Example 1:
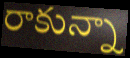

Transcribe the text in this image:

రాకున్నా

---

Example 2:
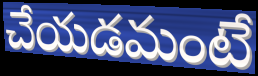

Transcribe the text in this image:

చేయడమంటే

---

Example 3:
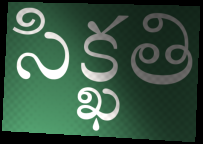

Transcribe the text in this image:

సిక్ఖతి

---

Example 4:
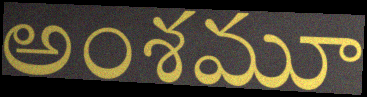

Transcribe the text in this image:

అంశమూ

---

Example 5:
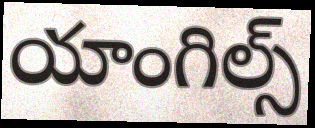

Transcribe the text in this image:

యాంగిల్స్